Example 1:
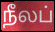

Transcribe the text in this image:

நீலப்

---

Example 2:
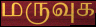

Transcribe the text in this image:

மருவுக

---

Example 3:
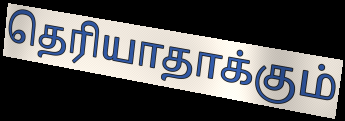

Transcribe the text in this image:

தெரியாதாக்கும்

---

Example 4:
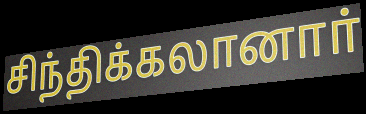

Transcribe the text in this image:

சிந்திக்கலானார்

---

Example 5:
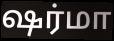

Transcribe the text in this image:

ஷர்மா